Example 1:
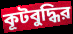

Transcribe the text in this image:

কূটবুদ্ধির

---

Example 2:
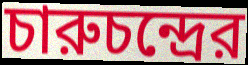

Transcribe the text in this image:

চারুচন্দ্রের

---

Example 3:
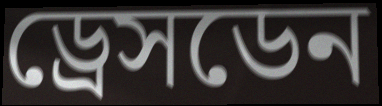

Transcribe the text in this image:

ড্রেসডেন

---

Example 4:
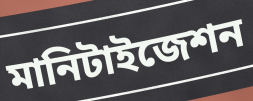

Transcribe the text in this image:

মানিটাইজেশন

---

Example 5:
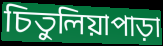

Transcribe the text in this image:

চিতুলিয়াপাড়া